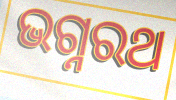
ଭଗ୍ନରଥ